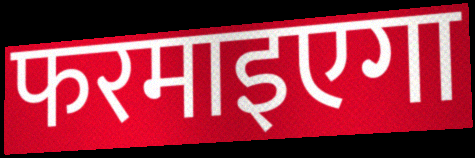
फरमाइएगा